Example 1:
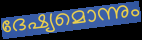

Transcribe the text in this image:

ദേഷ്യമൊന്നും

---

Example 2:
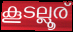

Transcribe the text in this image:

കൂടല്ലൂര്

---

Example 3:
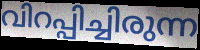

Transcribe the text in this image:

വിറപ്പിച്ചിരുന്ന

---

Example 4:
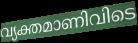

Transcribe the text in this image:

വ്യക്തമാണിവിടെ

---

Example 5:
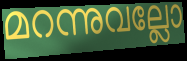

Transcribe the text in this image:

മറന്നുവല്ലോ